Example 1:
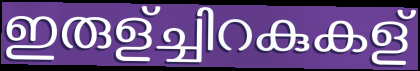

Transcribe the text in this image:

ഇരുള്ച്ചിറകുകള്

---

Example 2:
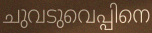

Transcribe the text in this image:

ചുവടുവെപ്പിനെ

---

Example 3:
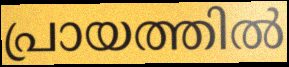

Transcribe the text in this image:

പ്രായത്തിൽ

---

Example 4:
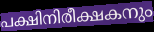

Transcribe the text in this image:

പക്ഷിനിരീക്ഷകനും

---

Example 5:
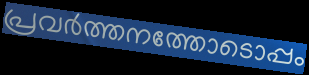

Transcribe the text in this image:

പ്രവർത്തനത്തോടൊപ്പം